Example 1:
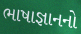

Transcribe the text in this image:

ભાષાજ્ઞાનનો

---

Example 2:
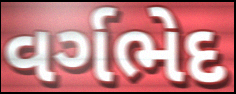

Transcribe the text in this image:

વર્ગભેદ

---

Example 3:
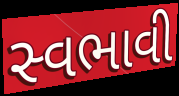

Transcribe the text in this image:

સ્વભાવી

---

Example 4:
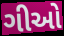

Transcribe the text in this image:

ગીઓ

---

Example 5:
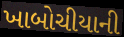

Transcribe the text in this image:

ખાબોચીયાની